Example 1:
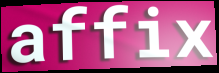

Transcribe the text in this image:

affix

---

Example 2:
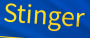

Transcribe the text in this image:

Stinger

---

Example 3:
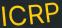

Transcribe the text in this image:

ICRP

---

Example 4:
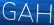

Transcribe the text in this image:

GAH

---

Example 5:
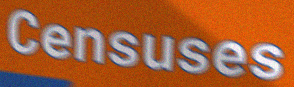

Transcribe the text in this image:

Censuses